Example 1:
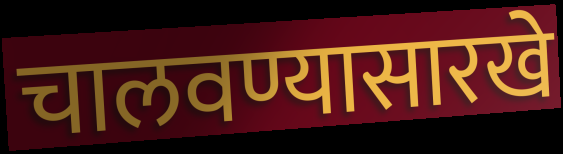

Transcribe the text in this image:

चालवण्यासारखे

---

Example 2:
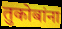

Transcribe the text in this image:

तुकोबांना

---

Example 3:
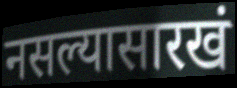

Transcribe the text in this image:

नसल्यासारखं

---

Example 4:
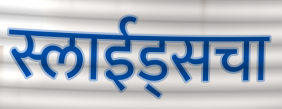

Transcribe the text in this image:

स्लाईड्सचा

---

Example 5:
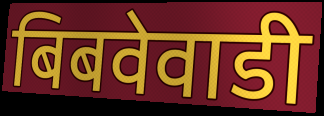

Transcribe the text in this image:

बिबवेवाडी